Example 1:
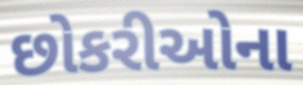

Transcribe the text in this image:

છોકરીઓના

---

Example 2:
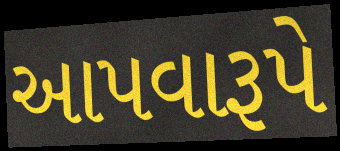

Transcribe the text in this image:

આપવારૂપે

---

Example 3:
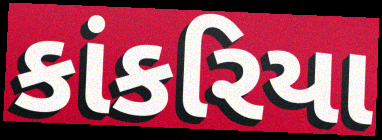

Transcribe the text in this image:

કાંકરિયા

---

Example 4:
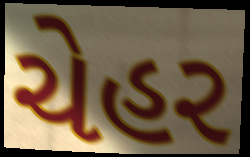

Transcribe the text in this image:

ચેહર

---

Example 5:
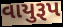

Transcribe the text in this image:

વાયુરૂપ